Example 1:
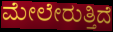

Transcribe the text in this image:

ಮೇಲೇರುತ್ತಿದೆ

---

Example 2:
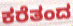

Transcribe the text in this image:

ಕರೆತಂದ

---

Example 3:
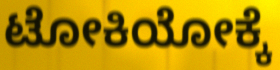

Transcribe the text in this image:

ಟೋಕಿಯೋಕ್ಕೆ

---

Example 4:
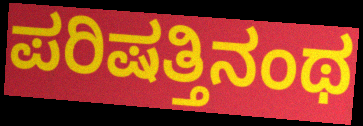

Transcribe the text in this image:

ಪರಿಷತ್ತಿನಂಥ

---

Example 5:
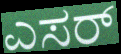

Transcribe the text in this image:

ಎಸರ್